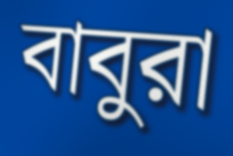
বাবুরা